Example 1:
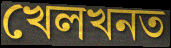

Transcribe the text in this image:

খেলখনত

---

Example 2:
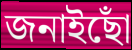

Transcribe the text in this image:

জনাইছোঁ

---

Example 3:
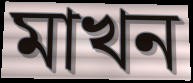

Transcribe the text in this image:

মাখন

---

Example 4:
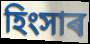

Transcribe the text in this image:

হিংসাৰ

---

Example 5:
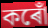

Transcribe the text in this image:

কৰোঁ